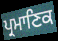
ਪ੍ਰਮਾਣਿਕ